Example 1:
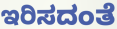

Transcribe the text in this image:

ಇರಿಸದಂತೆ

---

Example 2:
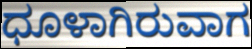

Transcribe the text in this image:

ಧೂಳಾಗಿರುವಾಗ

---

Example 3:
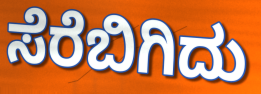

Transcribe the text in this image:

ಸೆರೆಬಿಗಿದು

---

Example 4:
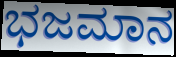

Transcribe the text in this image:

ಭಜಮಾನ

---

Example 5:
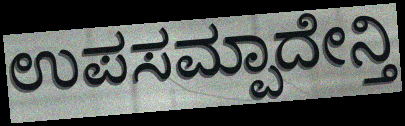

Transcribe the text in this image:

ಉಪಸಮ್ಪಾದೇನ್ತಿ